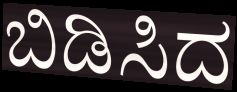
ಬಿಡಿಸಿದ